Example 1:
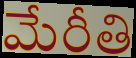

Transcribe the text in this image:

మేరీతి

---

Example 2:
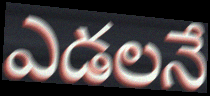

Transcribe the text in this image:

ఎడలనే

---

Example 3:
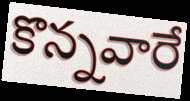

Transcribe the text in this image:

కొన్నవారే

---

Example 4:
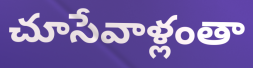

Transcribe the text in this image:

చూసేవాళ్లంతా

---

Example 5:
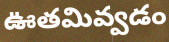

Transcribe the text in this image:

ఊతమివ్వడం